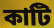
কাটি